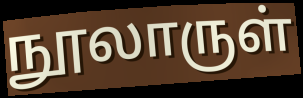
நூலாருள்